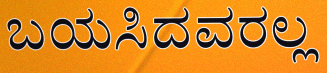
ಬಯಸಿದವರಲ್ಲ